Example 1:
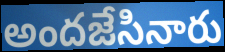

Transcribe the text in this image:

అందజేసినారు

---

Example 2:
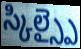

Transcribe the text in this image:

స్కిల్స్పై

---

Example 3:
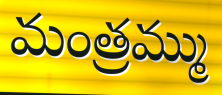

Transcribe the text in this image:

మంత్రమ్ము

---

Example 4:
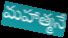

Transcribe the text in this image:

మహాత్మనే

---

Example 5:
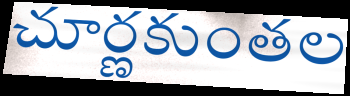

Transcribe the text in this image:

చూర్ణకుంతల